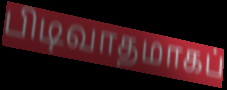
பிடிவாதமாகப்